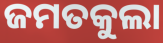
ଜମତକୁଲା